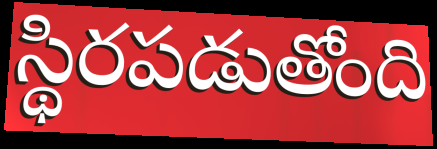
స్థిరపడుతోంది